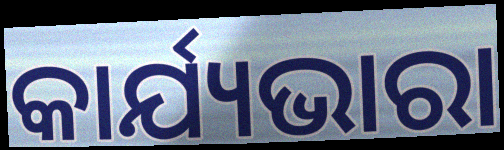
କାର୍ଯ୍ୟଭାରା